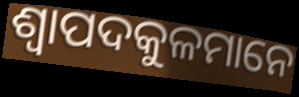
ଶ୍ୱାପଦକୁଳମାନେ